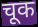
चूक